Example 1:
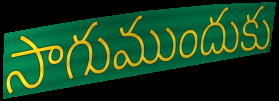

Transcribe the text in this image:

సాగుముందుకు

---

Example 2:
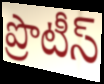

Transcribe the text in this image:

ప్రొటీస్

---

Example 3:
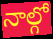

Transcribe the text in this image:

నాల్గో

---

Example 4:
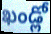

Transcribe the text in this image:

ఖండ్లో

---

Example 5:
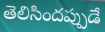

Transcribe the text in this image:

తెలిసిందప్పుడే